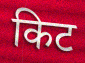
किट